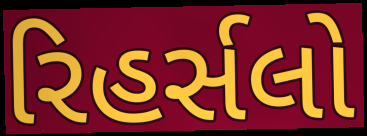
રિહર્સલો